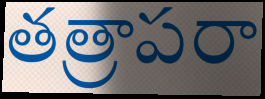
తత్రాపరా